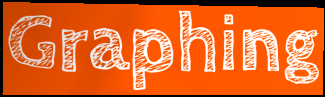
Graphing